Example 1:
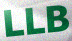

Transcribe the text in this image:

LLB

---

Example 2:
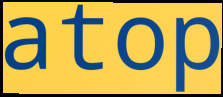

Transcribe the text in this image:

atop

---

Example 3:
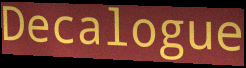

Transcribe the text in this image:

Decalogue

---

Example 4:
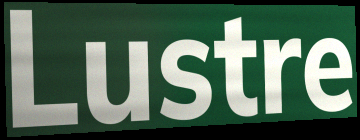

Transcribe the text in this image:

Lustre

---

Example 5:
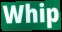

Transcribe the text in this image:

Whip